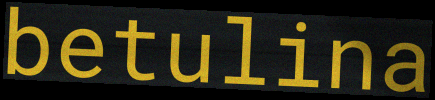
betulina